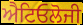
ਐਟਿਓਲੋਜੀ